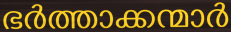
ഭർത്താക്കന്മാർ